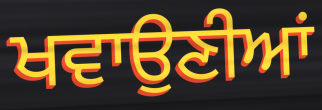
ਖਵਾਉਣੀਆਂ